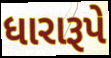
ધારારૂપે